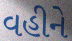
વહીને